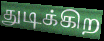
துடிக்கிற